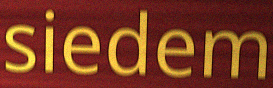
siedem